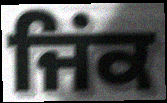
ਜਿਂਕ